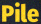
Pile